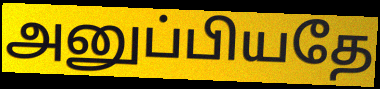
அனுப்பியதே